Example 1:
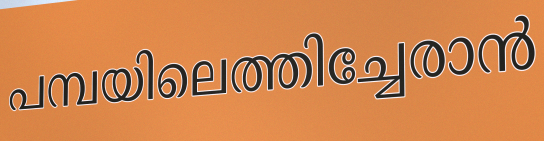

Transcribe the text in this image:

പമ്പയിലെത്തിച്ചേരാൻ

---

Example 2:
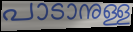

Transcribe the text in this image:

പാടാനുള്ള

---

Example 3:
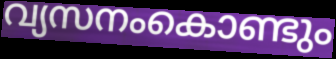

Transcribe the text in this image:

വ്യസനംകൊണ്ടും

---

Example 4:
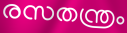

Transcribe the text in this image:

രസതന്ത്രം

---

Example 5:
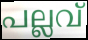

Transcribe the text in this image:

പല്ലവ്